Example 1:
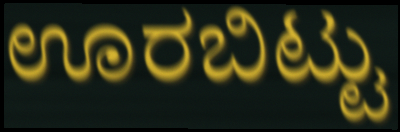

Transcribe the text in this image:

ಊರಬಿಟ್ಟು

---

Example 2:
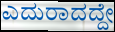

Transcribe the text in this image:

ಎದುರಾದದ್ದೇ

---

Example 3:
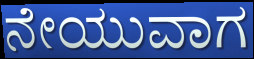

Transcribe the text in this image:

ನೇಯುವಾಗ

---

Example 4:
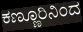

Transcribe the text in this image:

ಕಣ್ಣೂರಿನಿಂದ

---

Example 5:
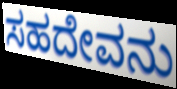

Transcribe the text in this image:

ಸಹದೇವನು